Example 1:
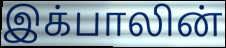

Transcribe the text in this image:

இக்பாலின்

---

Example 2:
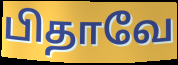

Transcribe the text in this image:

பிதாவே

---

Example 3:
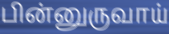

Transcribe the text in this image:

பின்னுருவாய்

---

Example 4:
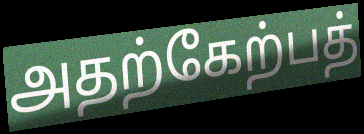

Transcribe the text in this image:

அதற்கேற்பத்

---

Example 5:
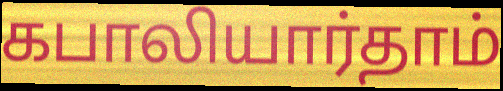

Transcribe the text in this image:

கபாலியார்தாம்